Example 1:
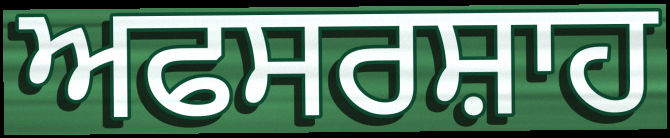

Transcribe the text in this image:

ਅਫਸਰਸ਼ਾਹ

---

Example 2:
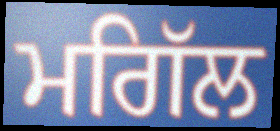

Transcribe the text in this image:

ਮਗਿੱਲ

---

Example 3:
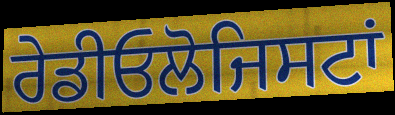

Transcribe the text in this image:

ਰੇਡੀਓਲੋਜਿਸਟਾਂ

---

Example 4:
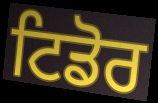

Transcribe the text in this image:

ਟਿਡੋਰ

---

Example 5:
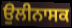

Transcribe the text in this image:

ਉਲੀਨਾਸਕ